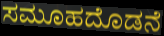
ಸಮೂಹದೊಡನೆ